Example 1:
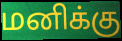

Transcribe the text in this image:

மனிக்கு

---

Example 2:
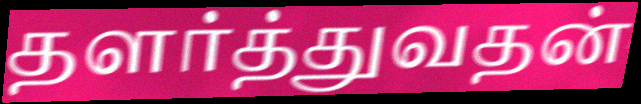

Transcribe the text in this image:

தளர்த்துவதன்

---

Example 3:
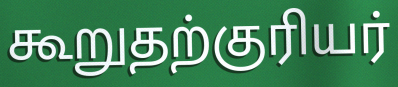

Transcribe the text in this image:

கூறுதற்குரியர்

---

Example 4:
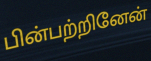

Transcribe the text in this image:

பின்பற்றினேன்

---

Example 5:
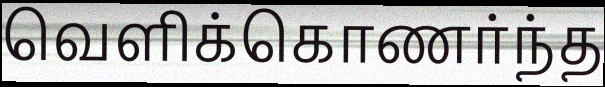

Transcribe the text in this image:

வெளிக்கொணர்ந்த